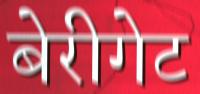
बेरीगेट